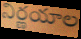
నిర్ణయాల